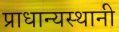
प्राधान्यस्थानी